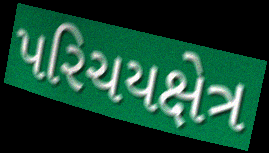
પરિચયક્ષેત્ર